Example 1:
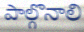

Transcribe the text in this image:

పాల్గొనాలి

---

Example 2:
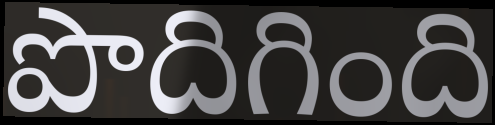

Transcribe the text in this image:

పొదిగింది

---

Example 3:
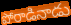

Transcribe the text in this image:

పోరాడినాడు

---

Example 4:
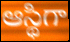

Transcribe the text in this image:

ఆస్థిగా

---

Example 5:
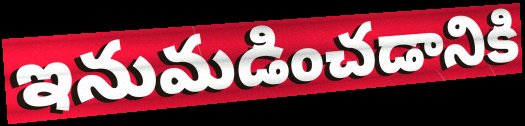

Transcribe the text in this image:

ఇనుమడించడానికి